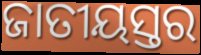
ଜାତୀୟସ୍ତର